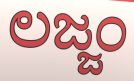
ಲಜ್ಜಂ